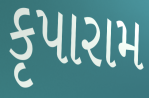
કૃપારામ